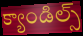
క్యాండిల్స్